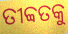
ତୀବ୍ବତକୁ